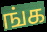
ங்க